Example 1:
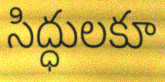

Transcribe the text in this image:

సిద్ధులకూ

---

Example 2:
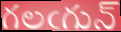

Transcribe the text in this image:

గలఁగున్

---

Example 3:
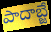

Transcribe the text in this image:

పాదాబ్జే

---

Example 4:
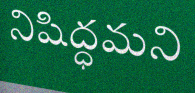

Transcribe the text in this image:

నిషిద్ధమని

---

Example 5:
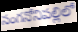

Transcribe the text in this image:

సంగనోనిపల్లిలో